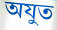
অযুত